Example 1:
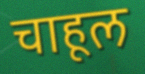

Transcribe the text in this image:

चाहूल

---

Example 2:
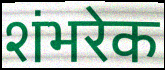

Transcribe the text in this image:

शंभरेक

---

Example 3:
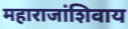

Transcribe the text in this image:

महाराजांशिवाय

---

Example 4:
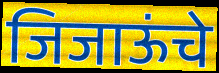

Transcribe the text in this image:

जिजाऊंचे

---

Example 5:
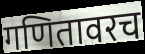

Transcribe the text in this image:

गणितावरच